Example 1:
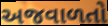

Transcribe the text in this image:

અજવાળતો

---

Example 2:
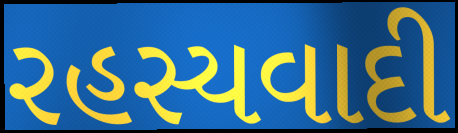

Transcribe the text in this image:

રહસ્યવાદી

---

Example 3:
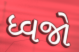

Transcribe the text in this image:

ધ્વજો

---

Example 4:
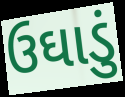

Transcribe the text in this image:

ઉઘાડું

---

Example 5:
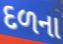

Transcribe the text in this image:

દળના